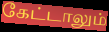
கேட்டாலும்